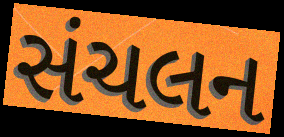
સંચલન